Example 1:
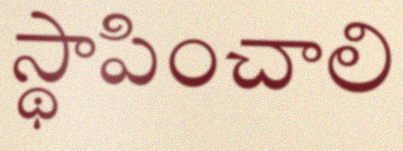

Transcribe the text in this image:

స్థాపించాలి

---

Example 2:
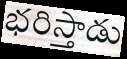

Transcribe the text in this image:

భరిస్తాడు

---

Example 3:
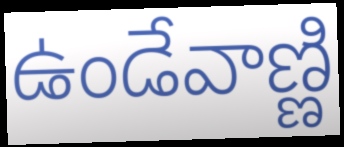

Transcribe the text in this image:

ఉండేవాణ్ణి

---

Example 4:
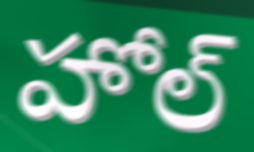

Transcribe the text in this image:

హోల్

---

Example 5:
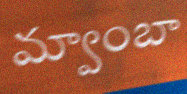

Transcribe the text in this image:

మ్వాంబా